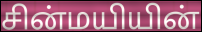
சின்மயியின்